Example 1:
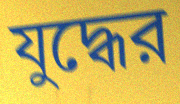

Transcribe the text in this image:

যুদ্ধের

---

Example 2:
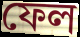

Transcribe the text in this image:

ফেল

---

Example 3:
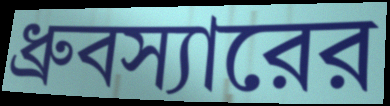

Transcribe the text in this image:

ধ্রুবস্যারের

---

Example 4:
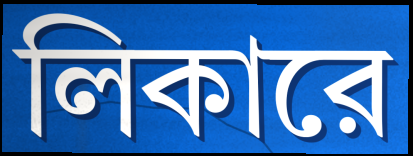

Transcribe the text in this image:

লিকারে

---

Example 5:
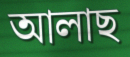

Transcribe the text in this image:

আলাছ